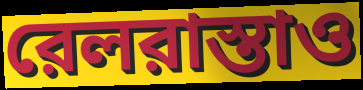
রেলরাস্তাও